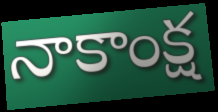
నాకాంక్ష